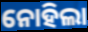
ନୋହିଲା